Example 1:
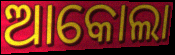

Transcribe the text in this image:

ଆକୋଲା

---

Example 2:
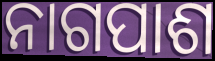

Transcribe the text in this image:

ନାଗପାଶ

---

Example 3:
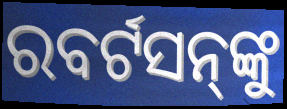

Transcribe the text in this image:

ରବର୍ଟସନ୍‌ଙ୍କୁ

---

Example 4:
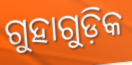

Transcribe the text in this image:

ଗୁହାଗୁଡ଼ିକ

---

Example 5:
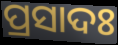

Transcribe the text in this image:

ପ୍ରସାଦଃ